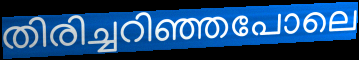
തിരിച്ചറിഞ്ഞപോലെ